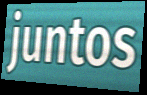
juntos